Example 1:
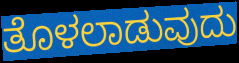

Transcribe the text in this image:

ತೊಳಲಾಡುವುದು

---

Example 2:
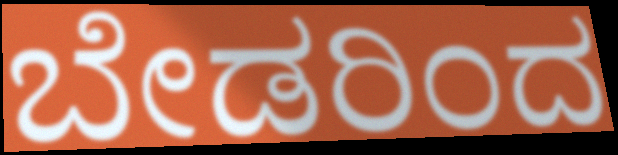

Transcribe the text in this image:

ಬೇಡರಿಂದ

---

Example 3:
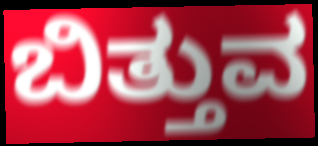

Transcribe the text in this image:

ಬಿತ್ತುವ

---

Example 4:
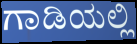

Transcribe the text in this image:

ಗಾಡಿಯಲ್ಲಿ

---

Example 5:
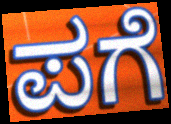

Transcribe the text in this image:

ಪಗೆ